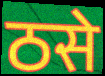
ठसे